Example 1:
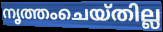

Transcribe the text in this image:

നൃത്തംചെയ്തില്ല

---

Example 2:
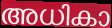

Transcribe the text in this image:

അധികാ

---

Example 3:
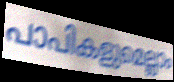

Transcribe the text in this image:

പാപികളുമെല്ലാം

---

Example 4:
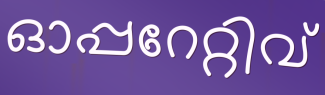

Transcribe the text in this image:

ഓപ്പറേറ്റിവ്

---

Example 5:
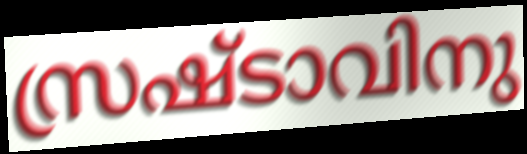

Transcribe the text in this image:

സ്രഷ്ടാവിനു